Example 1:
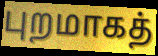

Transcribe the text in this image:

புறமாகத்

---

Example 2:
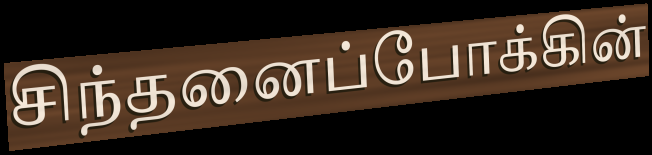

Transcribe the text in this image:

சிந்தனைப்போக்கின்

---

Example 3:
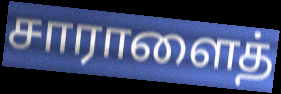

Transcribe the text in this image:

சாராளைத்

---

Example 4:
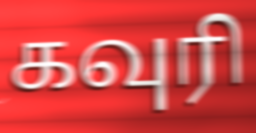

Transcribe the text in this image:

கவுரி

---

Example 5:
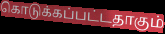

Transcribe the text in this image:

கொடுக்கப்பட்டதாகும்